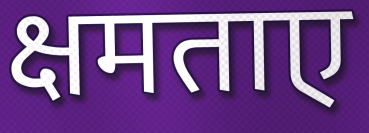
क्षमताए